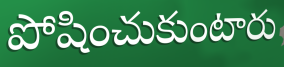
పోషించుకుంటారు